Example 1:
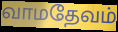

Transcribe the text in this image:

வாமதேவம்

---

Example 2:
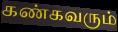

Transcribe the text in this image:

கண்கவரும்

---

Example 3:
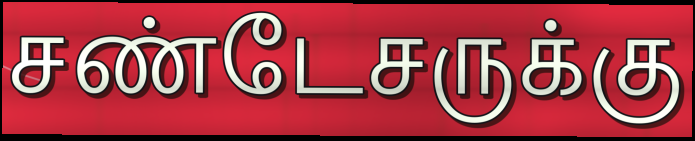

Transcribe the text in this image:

சண்டேசருக்கு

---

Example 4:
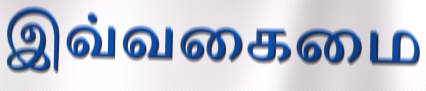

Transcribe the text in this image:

இவ்வகைமை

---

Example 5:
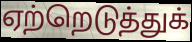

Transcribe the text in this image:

ஏற்றெடுத்துக்